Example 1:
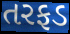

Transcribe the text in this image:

તરફડ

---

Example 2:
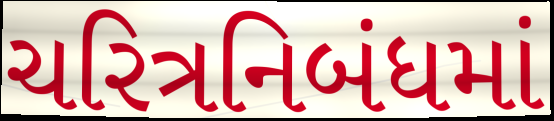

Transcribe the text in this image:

ચરિત્રનિબંધમાં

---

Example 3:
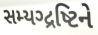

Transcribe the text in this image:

સમ્યગ્દ્રષ્ટિને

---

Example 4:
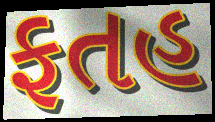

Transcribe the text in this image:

ફતહ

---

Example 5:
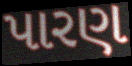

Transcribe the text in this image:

પારણ